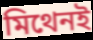
মিথেনই